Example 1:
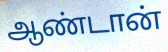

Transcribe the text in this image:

ஆண்டான்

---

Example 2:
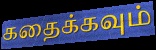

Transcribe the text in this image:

கதைக்கவும்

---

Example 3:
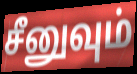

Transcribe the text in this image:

சீனுவும்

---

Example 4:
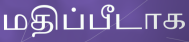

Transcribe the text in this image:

மதிப்பீடாக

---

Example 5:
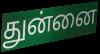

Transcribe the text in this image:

துன்னை